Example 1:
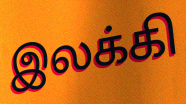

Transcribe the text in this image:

இலக்கி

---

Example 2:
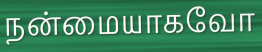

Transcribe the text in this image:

நன்மையாகவோ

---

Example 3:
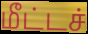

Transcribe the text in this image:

மீட்டச்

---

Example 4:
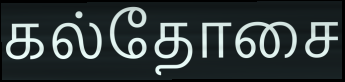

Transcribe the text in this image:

கல்தோசை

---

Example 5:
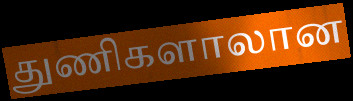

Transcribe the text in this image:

துணிகளாலான